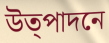
উত্পাদনে